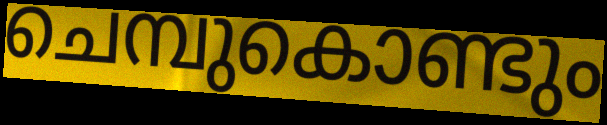
ചെമ്പുകൊണ്ടും